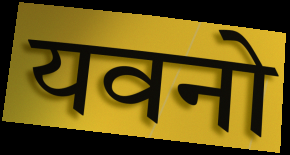
यवनो